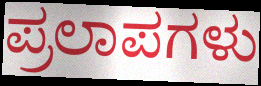
ಪ್ರಲಾಪಗಳು